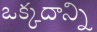
ఒక్కదాన్ని